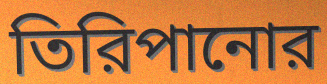
তিরিপানোর